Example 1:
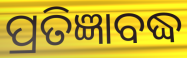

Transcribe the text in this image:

ପ୍ରତିଜ୍ଞାବଦ୍ଧ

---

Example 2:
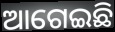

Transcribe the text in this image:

ଆଗେଇଛି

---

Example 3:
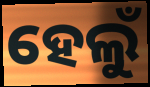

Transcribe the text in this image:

ହେଲୁଁ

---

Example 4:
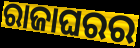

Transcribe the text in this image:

ରାଜାଘରର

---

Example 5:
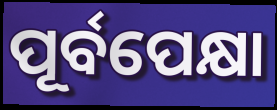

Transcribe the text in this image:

ପୂର୍ବପେକ୍ଷା